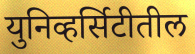
युनिव्हर्सिटीतील